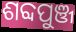
ଶବ୍ଦପୁଞ୍ଜ